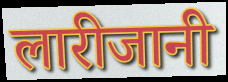
लारीजानी